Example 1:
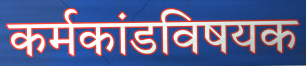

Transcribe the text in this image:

कर्मकांडविषयक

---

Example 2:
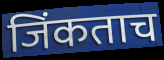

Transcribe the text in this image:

जिंकताच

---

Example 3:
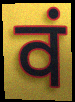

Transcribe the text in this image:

वं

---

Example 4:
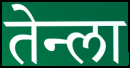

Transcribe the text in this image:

तेन्ला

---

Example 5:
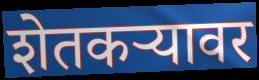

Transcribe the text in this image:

शेतकऱ्यावर